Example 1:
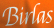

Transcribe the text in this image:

Birlas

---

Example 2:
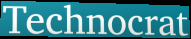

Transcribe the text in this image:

Technocrat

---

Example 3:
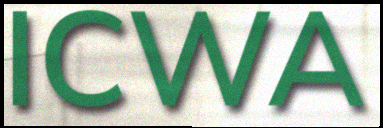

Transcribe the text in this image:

ICWA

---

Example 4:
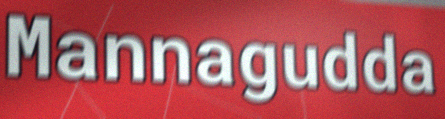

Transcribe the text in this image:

Mannagudda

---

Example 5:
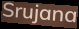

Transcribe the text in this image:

Srujana